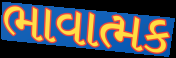
ભાવાત્મક